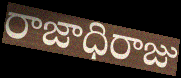
రాజాధిరాజు